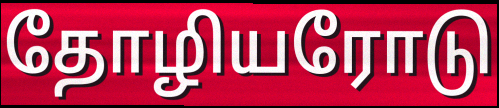
தோழியரோடு